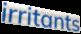
irritants